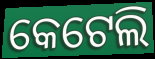
କେଟେଲି